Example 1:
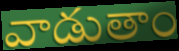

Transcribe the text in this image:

వాడుతాం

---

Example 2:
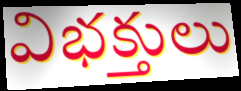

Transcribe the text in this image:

విభక్తులు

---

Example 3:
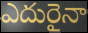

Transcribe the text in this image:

ఎదురైనా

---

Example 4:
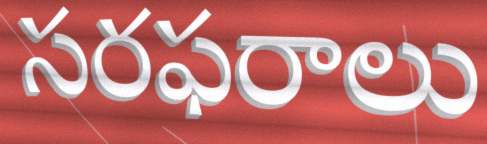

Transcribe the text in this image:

సరఫరాలు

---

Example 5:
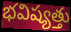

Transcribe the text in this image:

భవిష్యత్తు